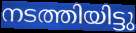
നടത്തിയിട്ടു